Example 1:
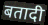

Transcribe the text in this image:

बतादी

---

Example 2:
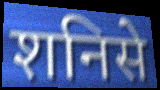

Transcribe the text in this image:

शनिसे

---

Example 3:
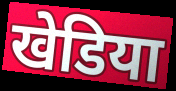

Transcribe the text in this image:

खेडिया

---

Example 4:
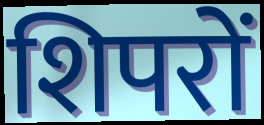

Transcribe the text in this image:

शिपरों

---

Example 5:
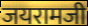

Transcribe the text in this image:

जयरामजी